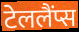
टेललैंप्स